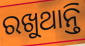
ରଖୁଥାନ୍ତି